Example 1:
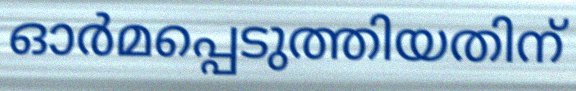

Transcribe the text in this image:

ഓർമപ്പെടുത്തിയതിന്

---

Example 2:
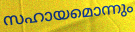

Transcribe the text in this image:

സഹായമൊന്നും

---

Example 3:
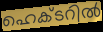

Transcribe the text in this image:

ഹെക്ടറിൽ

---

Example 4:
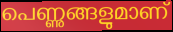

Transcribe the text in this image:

പെണ്ണുങ്ങളുമാണ്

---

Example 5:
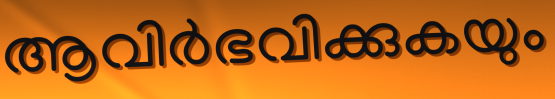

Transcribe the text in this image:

ആവിർഭവിക്കുകയും